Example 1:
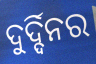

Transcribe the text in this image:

ଦୁର୍ଦ୍ଦିନର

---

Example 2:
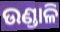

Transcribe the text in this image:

ଉଣ୍ଡାଳି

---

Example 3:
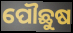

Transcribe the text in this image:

ପୌଛୁଷ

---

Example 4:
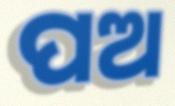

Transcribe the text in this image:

ପଅ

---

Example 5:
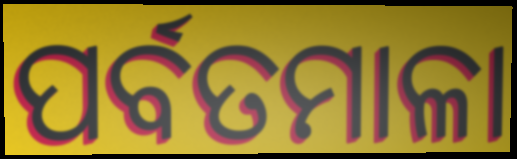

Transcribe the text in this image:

ପର୍ବତମାଳା